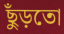
ছুঁড়তো